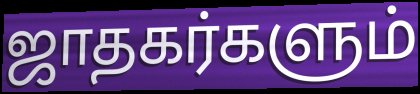
ஜாதகர்களும்